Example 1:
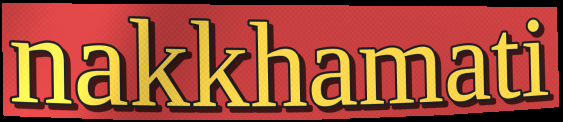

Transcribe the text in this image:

nakkhamati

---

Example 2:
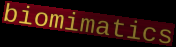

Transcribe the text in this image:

biomimatics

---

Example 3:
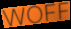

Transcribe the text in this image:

WOFF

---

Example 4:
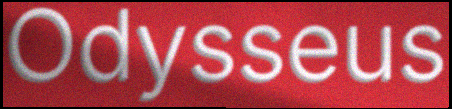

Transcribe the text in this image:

Odysseus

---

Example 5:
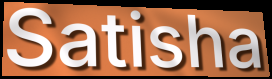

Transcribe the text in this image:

Satisha